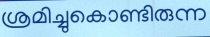
ശ്രമിച്ചുകൊണ്ടിരുന്ന